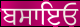
ਬਸਾਇਓ